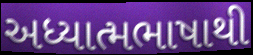
અધ્યાત્મભાષાથી